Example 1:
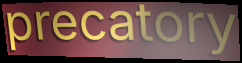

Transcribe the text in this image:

precatory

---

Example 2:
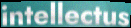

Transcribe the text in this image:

intellectus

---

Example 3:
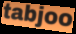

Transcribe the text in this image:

tabjoo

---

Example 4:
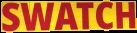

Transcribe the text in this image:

SWATCH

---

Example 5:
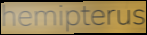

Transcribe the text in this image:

hemipterus